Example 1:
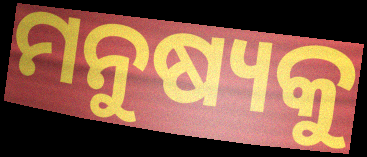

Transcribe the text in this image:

ମନୁଷ୍ୟକୁ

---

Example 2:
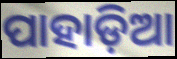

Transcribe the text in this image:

ପାହାଡ଼ିଆ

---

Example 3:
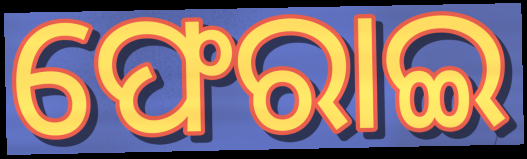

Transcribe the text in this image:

ଫେରାଇ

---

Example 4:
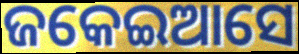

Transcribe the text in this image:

ଜକେଇଆସେ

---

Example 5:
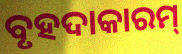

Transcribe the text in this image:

ବୃହଦାକାରମ୍